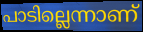
പാടില്ലെന്നാണ്